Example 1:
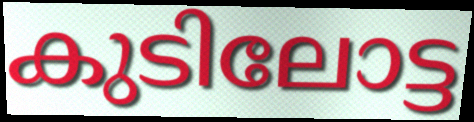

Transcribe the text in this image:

കുടിലോട്ട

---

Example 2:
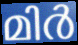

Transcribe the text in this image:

മിർ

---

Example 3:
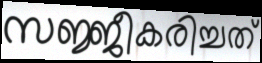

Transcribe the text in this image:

സജ്ജീകരിച്ചത്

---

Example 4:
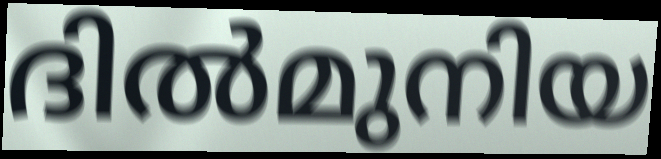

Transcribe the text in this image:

ദിൽമുനിയ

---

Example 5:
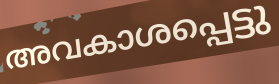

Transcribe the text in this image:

അവകാശപ്പെട്ടു